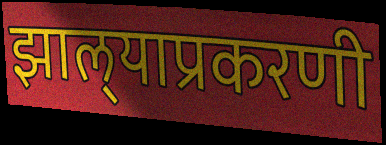
झाल्याप्रकरणी